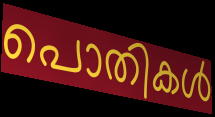
പൊതികൾ